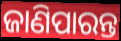
ଜାଣିପାରନ୍ତ